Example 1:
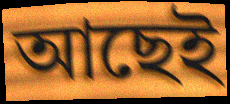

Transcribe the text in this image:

আছেই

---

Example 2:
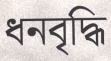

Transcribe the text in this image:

ধনবৃদ্ধি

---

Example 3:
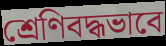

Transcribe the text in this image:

শ্রেণিবদ্ধভাবে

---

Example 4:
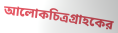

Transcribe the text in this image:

আলোকচিত্রগ্রাহকের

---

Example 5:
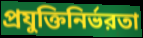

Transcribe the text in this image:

প্রযুক্তিনির্ভরতা